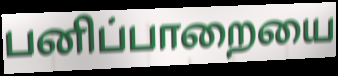
பனிப்பாறையை